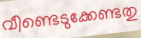
വീണ്ടെടുക്കേണ്ടതു